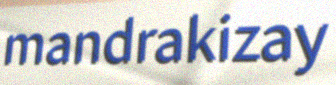
mandrakizay